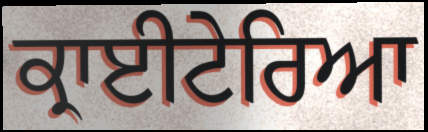
ਕ੍ਰਾਈਟੇਰਿਆ